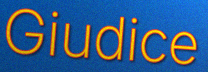
Giudice